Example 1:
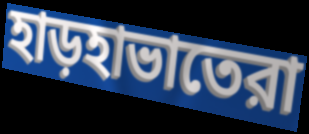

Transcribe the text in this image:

হাড়হাভাতেরা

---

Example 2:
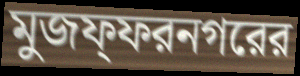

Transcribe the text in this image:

মুজফ্ফরনগরের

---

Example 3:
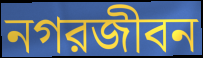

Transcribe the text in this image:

নগরজীবন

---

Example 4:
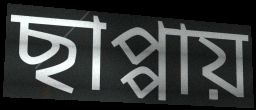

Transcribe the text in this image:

ছাপ্পায়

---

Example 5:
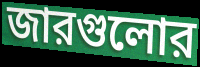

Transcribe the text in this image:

জারগুলোর